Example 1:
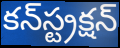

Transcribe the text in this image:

కన్‍స్ట్రక్షన్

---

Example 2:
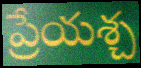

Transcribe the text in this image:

ప్రేయశ్చ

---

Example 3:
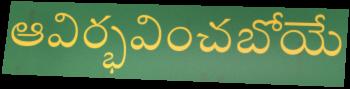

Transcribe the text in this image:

ఆవిర్భవించబోయే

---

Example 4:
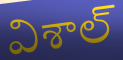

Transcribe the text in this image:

విశాల్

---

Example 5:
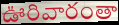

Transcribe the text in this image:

ఊరివారంతా